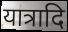
यात्रादि